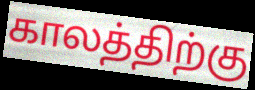
காலத்திற்கு